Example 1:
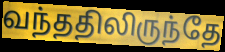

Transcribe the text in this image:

வந்ததிலிருந்தே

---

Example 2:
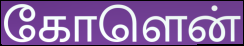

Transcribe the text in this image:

கோளென்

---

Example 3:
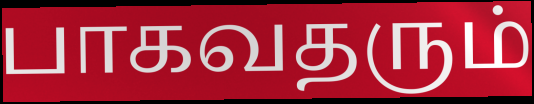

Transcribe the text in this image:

பாகவதரும்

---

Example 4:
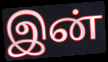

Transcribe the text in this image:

இன்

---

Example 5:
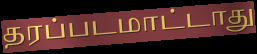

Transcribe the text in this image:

தரப்படமாட்டாது